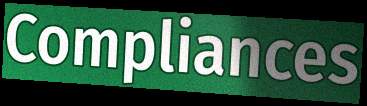
Compliances